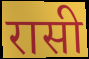
रासी